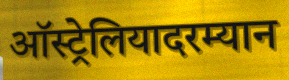
ऑस्ट्रेलियादरम्यान